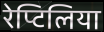
रेप्टिलिया